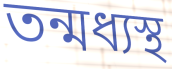
তন্মধ্যস্থ